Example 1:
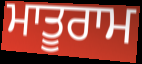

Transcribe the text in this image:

ਮਾਤੂਰਾਮ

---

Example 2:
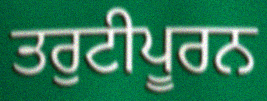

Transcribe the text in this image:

ਤਰੁਟੀਪੂਰਨ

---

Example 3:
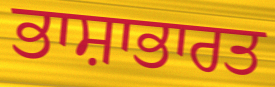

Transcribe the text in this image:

ਭਾਸ਼ਾਭਾਰਤ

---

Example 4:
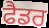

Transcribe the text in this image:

ਫੈਡਰ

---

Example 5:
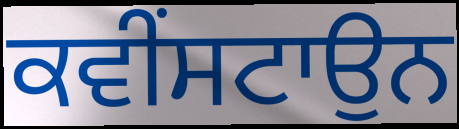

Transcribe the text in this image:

ਕਵੀਂਸਟਾਉਨ